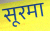
सूरमा